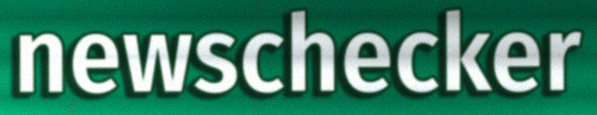
newschecker